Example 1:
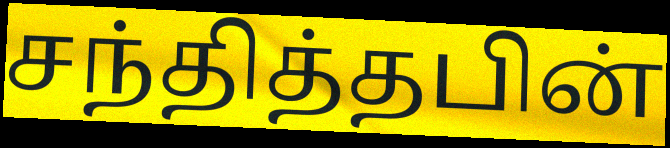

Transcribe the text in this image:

சந்தித்தபின்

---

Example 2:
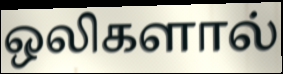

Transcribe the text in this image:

ஒலிகளால்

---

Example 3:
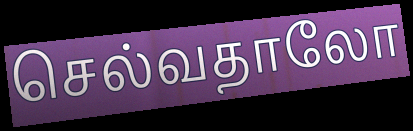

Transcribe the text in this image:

செல்வதாலோ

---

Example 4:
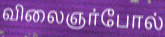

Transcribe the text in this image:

விலைஞர்போல்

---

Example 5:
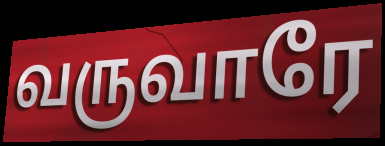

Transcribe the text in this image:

வருவாரே